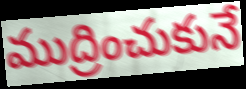
ముద్రించుకునే